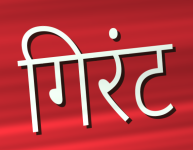
गिरंट